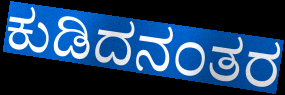
ಕುಡಿದನಂತರ